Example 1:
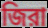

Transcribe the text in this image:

জিরা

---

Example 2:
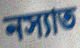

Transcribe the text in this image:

নস্যাত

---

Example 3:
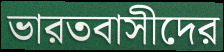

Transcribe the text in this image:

ভারতবাসীদের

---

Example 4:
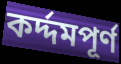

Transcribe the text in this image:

কর্দ্দমপূর্ণ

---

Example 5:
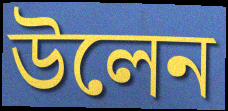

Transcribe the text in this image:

উলেন